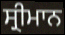
ਸ੍ਰੀਮਾਨ